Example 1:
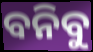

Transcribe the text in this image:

ବନିବୁ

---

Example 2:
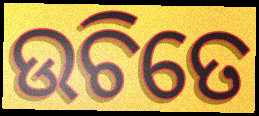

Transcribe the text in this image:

ଉଚିତେ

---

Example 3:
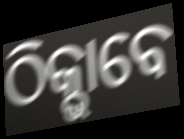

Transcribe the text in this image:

ଠିକ୍ଭାବେ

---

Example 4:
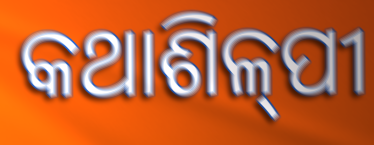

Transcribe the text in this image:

କଥାଶିଳ୍‌ପୀ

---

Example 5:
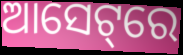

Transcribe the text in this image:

ଆସେଟ୍‌ରେ